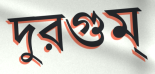
দুরগুম্